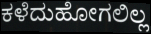
ಕಳೆದುಹೋಗಲಿಲ್ಲ